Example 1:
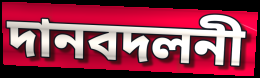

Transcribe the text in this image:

দানবদলনী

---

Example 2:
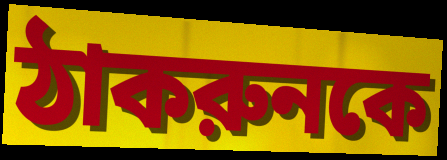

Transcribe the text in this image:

ঠাকরুনকে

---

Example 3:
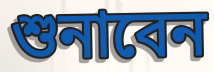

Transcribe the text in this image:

শুনাবেন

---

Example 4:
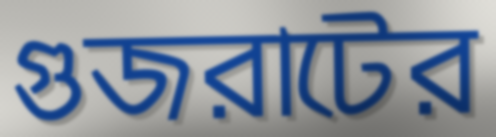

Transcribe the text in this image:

গুজরাটের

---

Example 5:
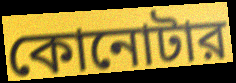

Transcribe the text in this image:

কোনোটার